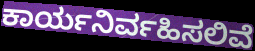
ಕಾರ್ಯನಿರ್ವಹಿಸಲಿವೆ